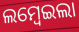
ଲମ୍ବେଇଲା